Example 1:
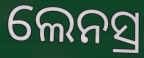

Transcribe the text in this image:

ଲେନସ୍ର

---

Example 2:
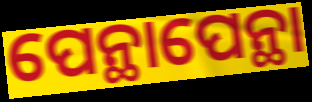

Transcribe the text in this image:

ପେନ୍ଥାପେନ୍ଥା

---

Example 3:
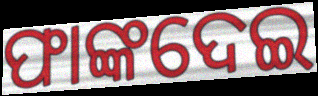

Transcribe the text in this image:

ଫାଙ୍କଦେଇ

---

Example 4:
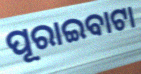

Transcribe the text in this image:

ପୂରାଇବାଟା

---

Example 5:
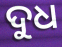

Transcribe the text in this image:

ଦୁଧ